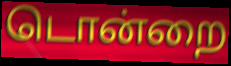
டொன்றை